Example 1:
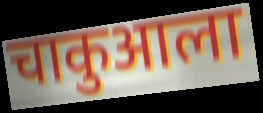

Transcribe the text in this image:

चाकुआला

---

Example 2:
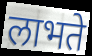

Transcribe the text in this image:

लाभते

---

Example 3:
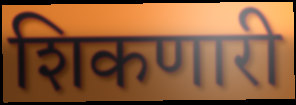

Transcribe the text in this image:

शिकणारी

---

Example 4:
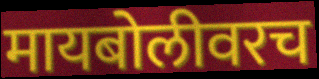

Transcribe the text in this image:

मायबोलीवरच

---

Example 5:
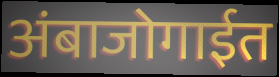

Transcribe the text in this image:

अंबाजोगाईत